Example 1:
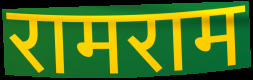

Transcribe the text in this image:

रामराम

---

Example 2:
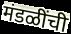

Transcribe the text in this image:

मंडळींची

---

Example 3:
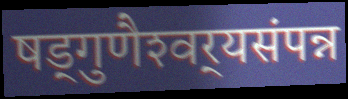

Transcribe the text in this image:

षड्‌गुणैश्वर्यसंपन्न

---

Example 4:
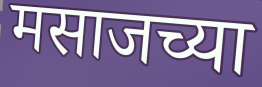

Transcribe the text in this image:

मसाजच्या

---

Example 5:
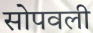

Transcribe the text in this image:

सोपवली